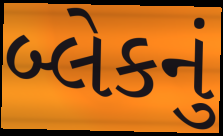
બ્લેકનું